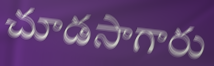
చూడసాగారు